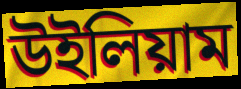
উইলিয়াম